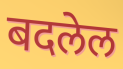
बदलेल